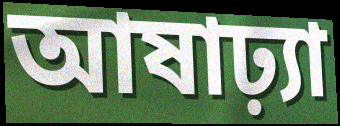
আষাঢ়্যা